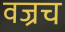
वज्रच